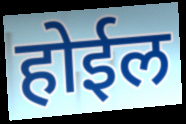
होईल